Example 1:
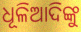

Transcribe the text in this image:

ଧୂଳିଆଦିଙ୍କୁ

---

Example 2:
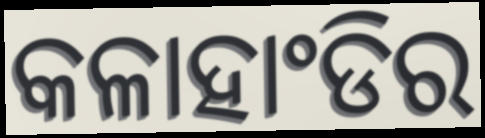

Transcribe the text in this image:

କଳାହାଂଡିର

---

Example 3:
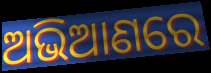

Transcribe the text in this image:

ଅଭିଆଣରେ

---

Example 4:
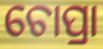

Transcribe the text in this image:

ଚୋପ୍ରା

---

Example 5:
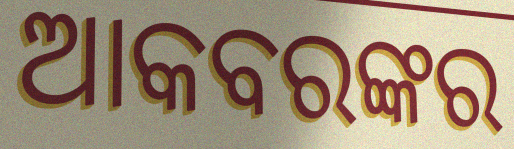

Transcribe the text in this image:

ଆକବରଙ୍କର